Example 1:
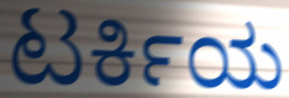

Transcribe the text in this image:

ಟರ್ಕಿಯ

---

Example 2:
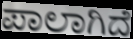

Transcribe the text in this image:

ಪಾಲಾಗಿದೆ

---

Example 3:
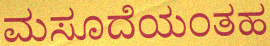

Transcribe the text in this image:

ಮಸೂದೆಯಂತಹ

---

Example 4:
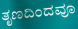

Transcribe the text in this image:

ತೃಣದಿಂದವೂ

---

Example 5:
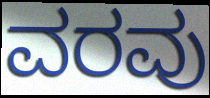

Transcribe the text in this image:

ವರವು